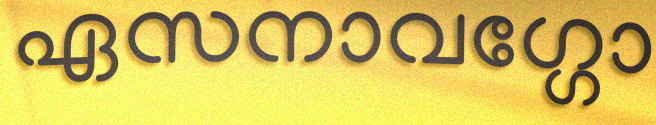
ഏസനാവഗ്ഗോ